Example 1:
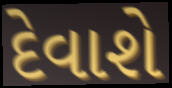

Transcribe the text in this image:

દેવાશે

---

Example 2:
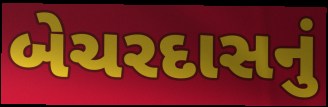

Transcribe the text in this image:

બેચરદાસનું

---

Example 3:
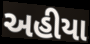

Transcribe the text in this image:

અહીયા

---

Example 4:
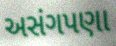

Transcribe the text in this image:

અસંગપણા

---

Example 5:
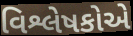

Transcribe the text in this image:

વિશ્લેષકોએ